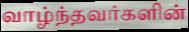
வாழ்ந்தவர்களின்